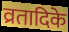
व्रतादिके